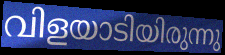
വിളയാടിയിരുന്നു